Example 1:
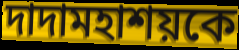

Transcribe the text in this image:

দাদামহাশয়কে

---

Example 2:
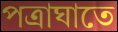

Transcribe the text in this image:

পত্রাঘাতে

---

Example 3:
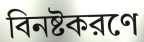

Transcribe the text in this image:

বিনষ্টকরণে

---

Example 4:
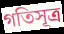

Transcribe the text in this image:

গতিসূত্র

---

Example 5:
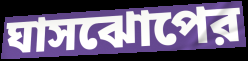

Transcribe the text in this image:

ঘাসঝোপের